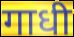
गाधी